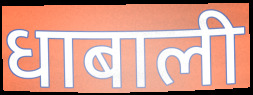
धाबाली